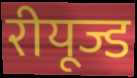
रीयूज्ड